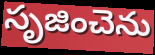
సృజించెను